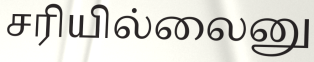
சரியில்லைனு